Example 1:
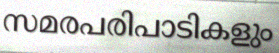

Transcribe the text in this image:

സമരപരിപാടികളും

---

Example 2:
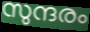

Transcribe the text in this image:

സുന്ദരം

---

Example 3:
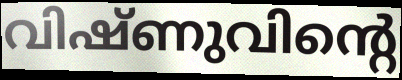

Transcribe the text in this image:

വിഷ്ണുവിന്റെ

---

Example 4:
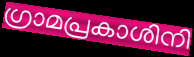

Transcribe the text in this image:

ഗ്രാമപ്രകാശിനി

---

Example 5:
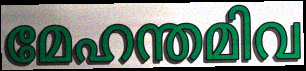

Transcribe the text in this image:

മേഹന്തമിവ